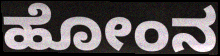
ಹೋಂನ